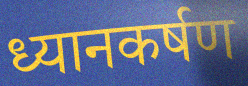
ध्यानकर्षण